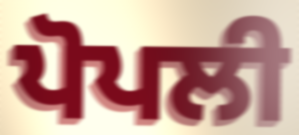
ਪੋਪਲੀ